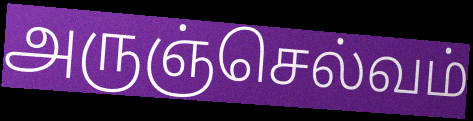
அருஞ்செல்வம்